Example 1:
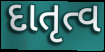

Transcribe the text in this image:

દાતૃત્વ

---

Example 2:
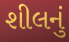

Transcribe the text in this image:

શીલનું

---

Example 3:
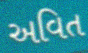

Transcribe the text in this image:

અવિત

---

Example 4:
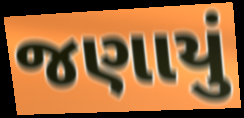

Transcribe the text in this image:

જણાયું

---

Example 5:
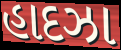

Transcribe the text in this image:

હાદઝા